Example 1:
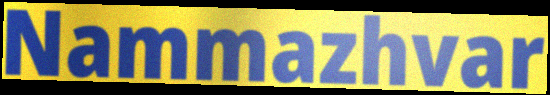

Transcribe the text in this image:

Nammazhvar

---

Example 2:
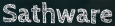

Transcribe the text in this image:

Sathware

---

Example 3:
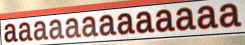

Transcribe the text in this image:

aaaaaaaaaaaaa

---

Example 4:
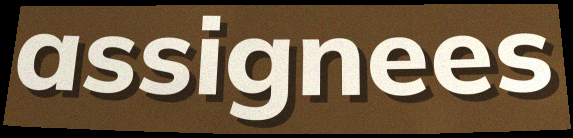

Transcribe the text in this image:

assignees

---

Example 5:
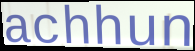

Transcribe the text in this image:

achhun